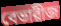
বেভারীজ